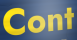
Cont